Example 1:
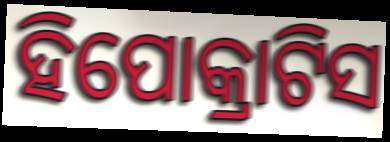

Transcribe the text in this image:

ହିପୋକ୍ରାଟିସ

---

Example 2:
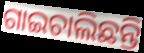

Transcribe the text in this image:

ଗାଇଚାଲିଛନ୍ତି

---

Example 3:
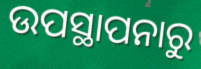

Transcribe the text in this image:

ଉପସ୍ଥାପନାରୁ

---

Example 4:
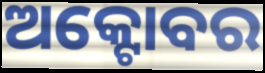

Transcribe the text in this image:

ଅକ୍ଟୋବର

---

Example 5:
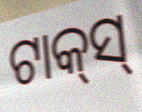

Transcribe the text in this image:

ଟାକ୍‍ସ୍